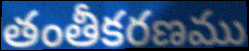
తంతీకరణము